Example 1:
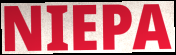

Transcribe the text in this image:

NIEPA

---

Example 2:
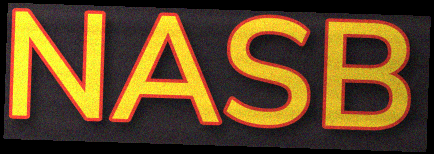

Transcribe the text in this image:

NASB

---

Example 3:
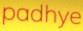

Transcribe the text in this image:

padhye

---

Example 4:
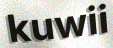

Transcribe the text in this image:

kuwii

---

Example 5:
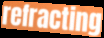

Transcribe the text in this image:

refracting